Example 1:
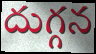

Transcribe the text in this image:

దుగ్గన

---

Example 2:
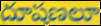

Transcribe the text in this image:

దూషణలూ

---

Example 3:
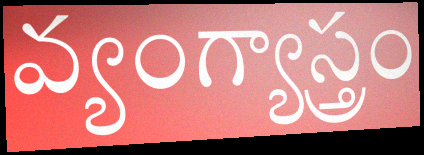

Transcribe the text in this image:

వ్యంగ్యాస్త్రం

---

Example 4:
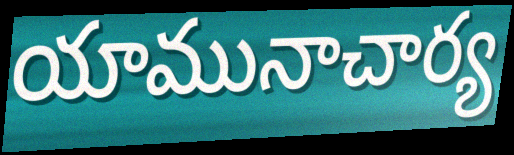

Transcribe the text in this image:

యామునాచార్య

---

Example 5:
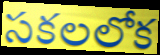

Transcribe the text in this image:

సకలలోక